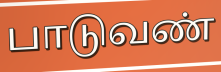
பாடுவண்